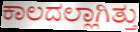
ಕಾಲದಲ್ಲಾಗಿತ್ತು